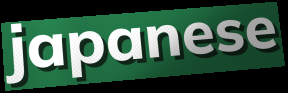
japanese